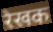
रेखक